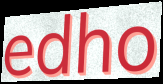
edho